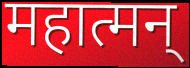
महात्मन्